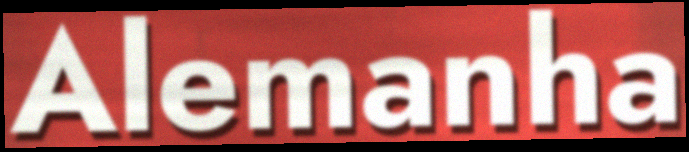
Alemanha